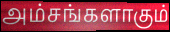
அம்சங்களாகும்